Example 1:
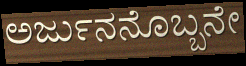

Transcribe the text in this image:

ಅರ್ಜುನನೊಬ್ಬನೇ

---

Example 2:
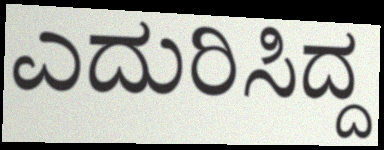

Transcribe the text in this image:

ಎದುರಿಸಿದ್ದ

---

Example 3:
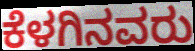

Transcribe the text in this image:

ಕೆಳಗಿನವರು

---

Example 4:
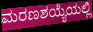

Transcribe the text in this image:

ಮರಣಶಯ್ಯೆಯಲ್ಲಿ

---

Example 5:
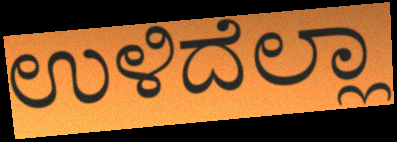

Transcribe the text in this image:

ಉಳಿದೆಲ್ಲಾ